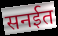
सनईत